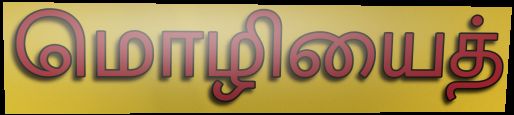
மொழியைத்